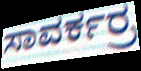
ಸಾವರ್ಕರ್ರ